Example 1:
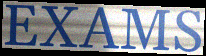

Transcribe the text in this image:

EXAMS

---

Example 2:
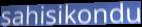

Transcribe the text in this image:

sahisikondu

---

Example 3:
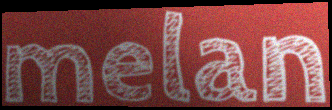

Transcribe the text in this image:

melan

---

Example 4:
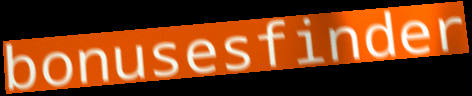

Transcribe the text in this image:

bonusesfinder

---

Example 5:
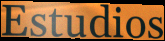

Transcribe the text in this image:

Estudios